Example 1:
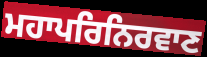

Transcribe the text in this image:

ਮਹਾਪਰਿਨਿਰਵਾਣ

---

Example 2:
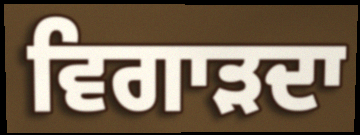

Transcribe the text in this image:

ਵਿਗਾੜਦਾ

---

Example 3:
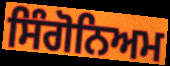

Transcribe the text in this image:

ਸਿੰਗੋਨਿਅਮ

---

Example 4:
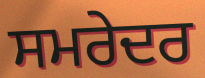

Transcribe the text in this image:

ਸਮਰੇਦਰ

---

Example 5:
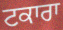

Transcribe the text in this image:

ਟਕਾਰਾ